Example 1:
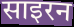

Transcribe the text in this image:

साइरन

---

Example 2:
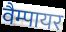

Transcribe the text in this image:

वैम्पायर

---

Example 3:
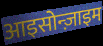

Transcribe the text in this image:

आइसोन्ज़ाइम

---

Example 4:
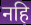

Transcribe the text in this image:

नहि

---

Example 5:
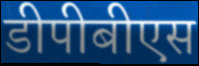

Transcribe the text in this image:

डीपीबीएस